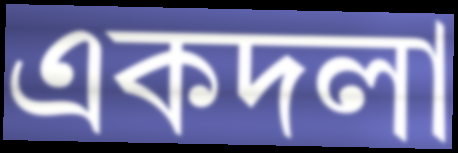
একদলা